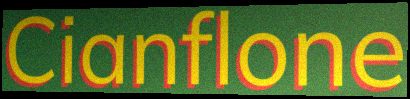
Cianflone